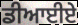
ਡੀਆਈਏ